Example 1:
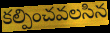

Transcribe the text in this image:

కల్పించవలసిన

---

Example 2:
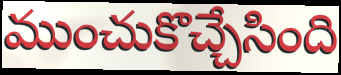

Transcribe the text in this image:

ముంచుకొచ్చేసింది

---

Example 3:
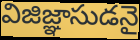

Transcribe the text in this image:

విజిజ్ఞాసుడనై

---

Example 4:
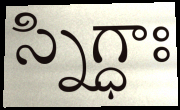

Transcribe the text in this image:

స్నిగ్ధాః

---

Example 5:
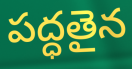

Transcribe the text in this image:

పద్ధతైన